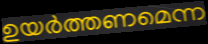
ഉയർത്തണമെന്ന